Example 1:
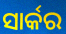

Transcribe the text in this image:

ସାର୍କର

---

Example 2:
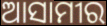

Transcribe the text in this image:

ଆସାମୀର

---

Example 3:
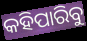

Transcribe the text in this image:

କହିପାରିବୁ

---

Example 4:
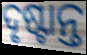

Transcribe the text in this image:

ଦୃଷ୍ଟାନ୍ତ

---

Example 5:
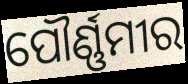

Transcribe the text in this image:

ପୌର୍ଣ୍ଣମୀର